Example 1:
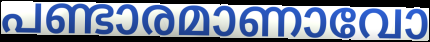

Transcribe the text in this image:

പണ്ടാരമാണാവോ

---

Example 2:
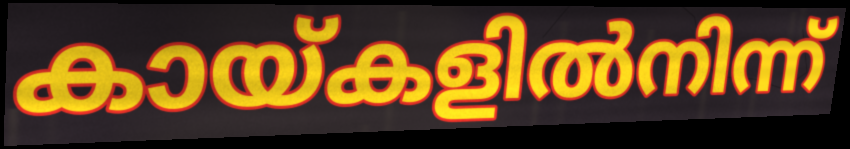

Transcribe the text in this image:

കായ്കളിൽനിന്ന്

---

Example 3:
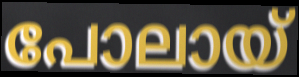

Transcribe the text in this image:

പോലായ്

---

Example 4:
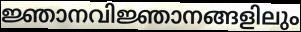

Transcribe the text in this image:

ജ്ഞാനവിജ്ഞാനങ്ങളിലും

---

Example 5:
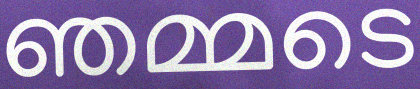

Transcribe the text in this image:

ഞമ്മടെ